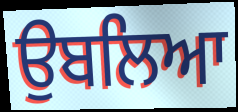
ਉਬਲਿਆ